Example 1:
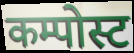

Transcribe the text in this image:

कम्पोस्ट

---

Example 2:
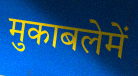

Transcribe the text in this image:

मुकाबलेमें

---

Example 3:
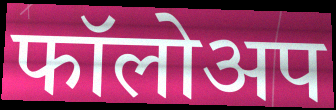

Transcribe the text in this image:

फॉलोअप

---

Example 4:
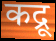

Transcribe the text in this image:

कद्रू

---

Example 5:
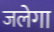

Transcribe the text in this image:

जलेगा